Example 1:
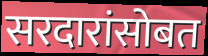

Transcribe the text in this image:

सरदारांसोबत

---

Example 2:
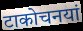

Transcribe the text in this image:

टाकोचनयां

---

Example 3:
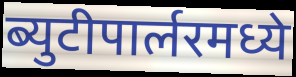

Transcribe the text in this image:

ब्युटीपार्लरमध्ये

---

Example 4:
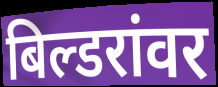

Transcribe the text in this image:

बिल्डरांवर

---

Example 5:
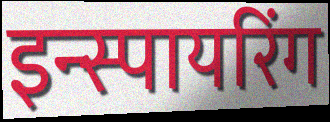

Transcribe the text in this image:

इन्स्पायरिंग